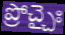
ప్రోచ్చైః